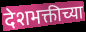
देशभक्तीच्या